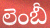
లెంబీ